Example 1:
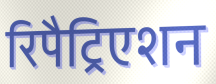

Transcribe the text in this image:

रिपैट्रिएशन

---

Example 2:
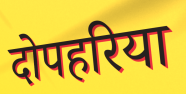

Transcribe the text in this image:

दोपहरिया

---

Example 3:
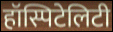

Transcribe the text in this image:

हॉस्पिटेलिटी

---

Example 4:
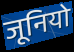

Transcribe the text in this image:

जूनियो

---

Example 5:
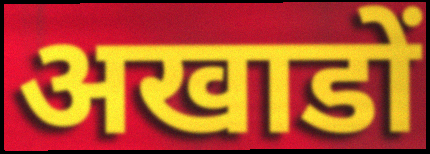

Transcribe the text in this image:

अखाडों